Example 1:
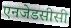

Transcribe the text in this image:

एनजेडसीसी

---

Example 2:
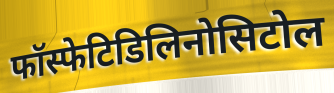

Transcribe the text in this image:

फॉस्फेटिडिलिनोसिटोल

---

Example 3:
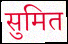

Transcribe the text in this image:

सुमित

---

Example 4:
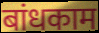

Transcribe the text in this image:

बांधकाम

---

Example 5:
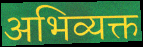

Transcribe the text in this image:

अभिव्यक्त